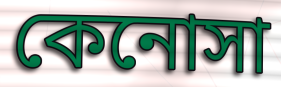
কেনোসা